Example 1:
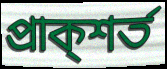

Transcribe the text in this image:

প্রাক্‌শর্ত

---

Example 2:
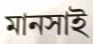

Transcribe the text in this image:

মানসাই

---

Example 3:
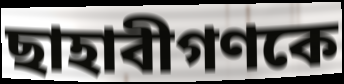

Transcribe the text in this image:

ছাহাবীগণকে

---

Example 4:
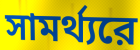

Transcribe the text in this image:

সামর্থ্যরে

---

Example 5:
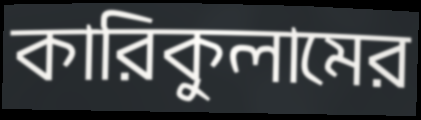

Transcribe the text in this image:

কারিকুলামের